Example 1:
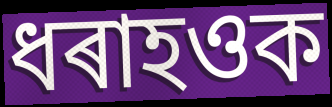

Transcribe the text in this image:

ধৰাহওক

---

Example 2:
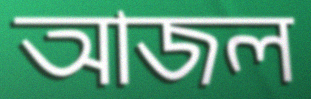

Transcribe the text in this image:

আজল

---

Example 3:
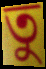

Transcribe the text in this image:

তু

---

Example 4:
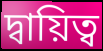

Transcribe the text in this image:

দ্বায়িত্ব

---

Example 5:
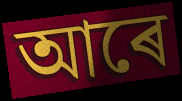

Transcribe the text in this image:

আৰে